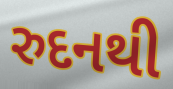
રુદનથી